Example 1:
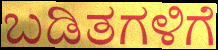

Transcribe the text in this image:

ಬಡಿತಗಳಿಗೆ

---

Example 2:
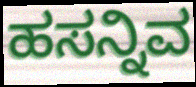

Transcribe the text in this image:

ಹಸನ್ನಿವ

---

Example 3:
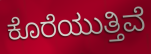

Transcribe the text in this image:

ಕೊರೆಯುತ್ತಿವೆ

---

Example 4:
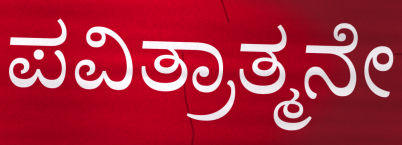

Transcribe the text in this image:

ಪವಿತ್ರಾತ್ಮನೇ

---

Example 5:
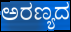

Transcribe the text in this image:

ಅರಣ್ಯದ